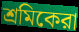
শ্রমিকেরা